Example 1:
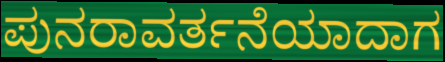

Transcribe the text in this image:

ಪುನರಾವರ್ತನೆಯಾದಾಗ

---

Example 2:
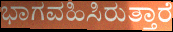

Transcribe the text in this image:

ಭಾಗವಹಿಸಿರುತ್ತಾರೆ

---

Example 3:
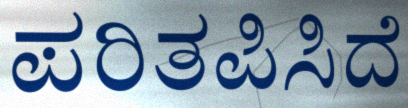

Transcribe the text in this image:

ಪರಿತಪಿಸಿದೆ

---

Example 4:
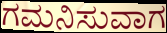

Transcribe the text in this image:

ಗಮನಿಸುವಾಗ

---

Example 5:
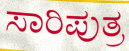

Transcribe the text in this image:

ಸಾರಿಪುತ್ರ